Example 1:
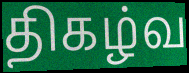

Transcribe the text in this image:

திகழ்வ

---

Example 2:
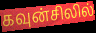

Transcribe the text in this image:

கவுன்சிலில்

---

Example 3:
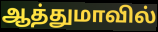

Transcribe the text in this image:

ஆத்துமாவில்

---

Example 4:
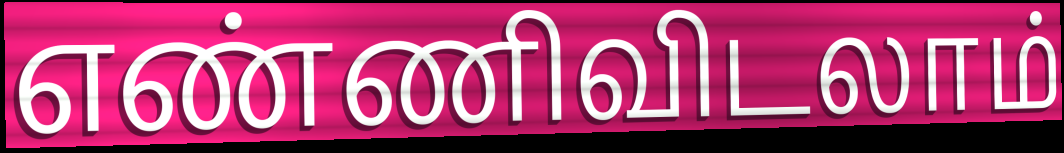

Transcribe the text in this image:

எண்ணிவிடலாம்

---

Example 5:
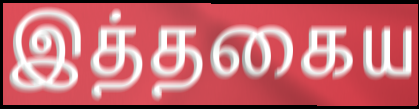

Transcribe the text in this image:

இத்தகைய